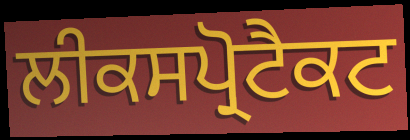
ਲੀਕਸਪ੍ਰੋਟੈਕਟ